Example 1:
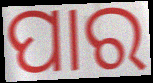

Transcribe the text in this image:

ପାର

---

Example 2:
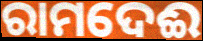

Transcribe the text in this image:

ରାମଦେଈ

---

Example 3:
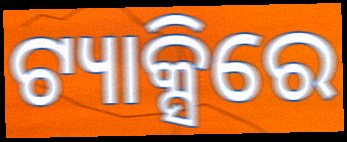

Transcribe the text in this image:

ଟ୍ୟାକ୍ସିରେ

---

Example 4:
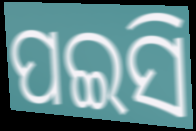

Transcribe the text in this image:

ପଇସି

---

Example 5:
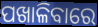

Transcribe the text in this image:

ପଖାଳିବାରେ